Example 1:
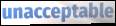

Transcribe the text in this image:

unacceptable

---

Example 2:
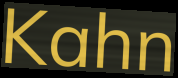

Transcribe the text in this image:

Kahn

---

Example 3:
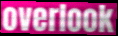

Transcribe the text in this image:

overlook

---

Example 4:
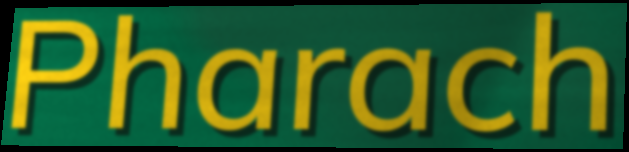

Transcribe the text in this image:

Pharach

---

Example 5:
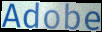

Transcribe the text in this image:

Adobe